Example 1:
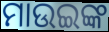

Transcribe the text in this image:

ମାଉଇଙ୍କ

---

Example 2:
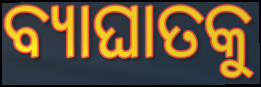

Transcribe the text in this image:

ବ୍ୟାଘାତକୁ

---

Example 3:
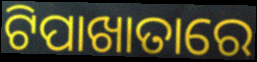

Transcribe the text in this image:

ଟିପାଖାତାରେ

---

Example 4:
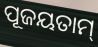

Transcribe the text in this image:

ପୂଜୟତାମ୍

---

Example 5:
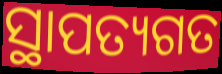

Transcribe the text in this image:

ସ୍ଥାପତ୍ୟଗତ